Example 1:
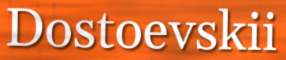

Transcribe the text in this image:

Dostoevskii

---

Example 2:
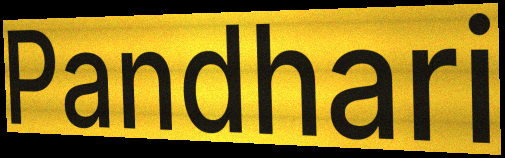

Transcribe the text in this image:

Pandhari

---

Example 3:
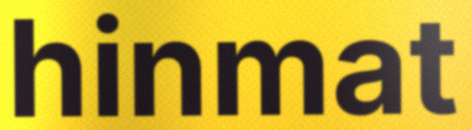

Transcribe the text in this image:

hinmat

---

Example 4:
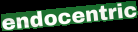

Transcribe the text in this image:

endocentric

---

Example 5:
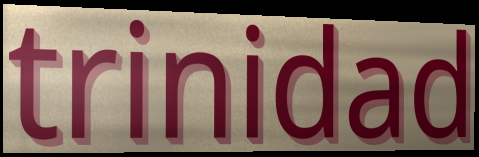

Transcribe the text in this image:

trinidad